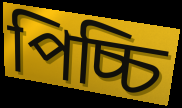
পিচ্চি